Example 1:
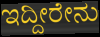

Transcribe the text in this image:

ಇದ್ದೀರೇನು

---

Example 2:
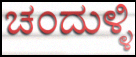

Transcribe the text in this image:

ಚಂದುಳ್ಳಿ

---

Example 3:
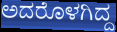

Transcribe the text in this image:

ಅದರೊಳಗಿದ್ದ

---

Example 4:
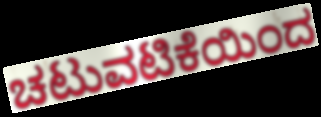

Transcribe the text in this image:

ಚಟುವಟಿಕೆಯಿಂದ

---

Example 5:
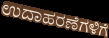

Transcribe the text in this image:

ಉದಾಹರಣೆಗಳಿಗೆ